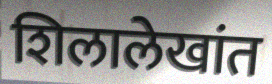
शिलालेखांत